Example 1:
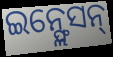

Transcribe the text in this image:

ଇନ୍ଫ୍ଲେସନ୍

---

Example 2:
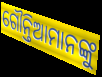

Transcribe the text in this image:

ଗୌନ୍ତିଆମାନଙ୍କୁ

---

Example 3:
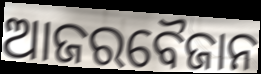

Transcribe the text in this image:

ଆଜରବୈଜାନ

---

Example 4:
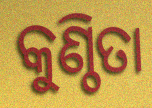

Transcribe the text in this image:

କୁଣ୍ଠିତା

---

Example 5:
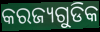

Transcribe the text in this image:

କରଜ୍ୟଗୁଡିକ